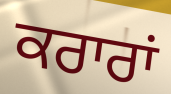
ਕਰਾਰਾਂ